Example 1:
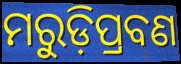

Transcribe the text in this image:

ମରୁଡ଼ିପ୍ରବଣ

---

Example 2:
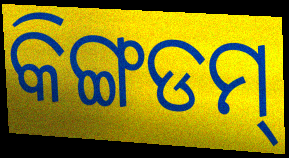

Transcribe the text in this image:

କିଙ୍ଗଡମ୍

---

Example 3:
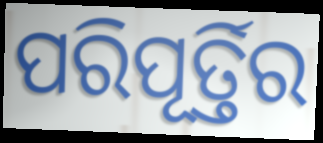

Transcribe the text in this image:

ପରିପୂର୍ତ୍ତିର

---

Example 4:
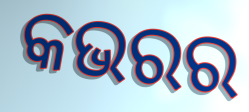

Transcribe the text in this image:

କଭରର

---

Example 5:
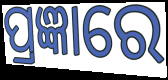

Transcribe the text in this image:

ପ୍ରଜ୍ଞାରେ